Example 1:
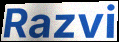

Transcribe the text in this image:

Razvi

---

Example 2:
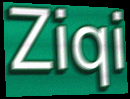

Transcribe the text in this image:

Ziqi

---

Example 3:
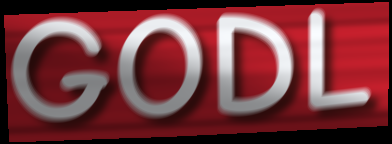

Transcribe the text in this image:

GODL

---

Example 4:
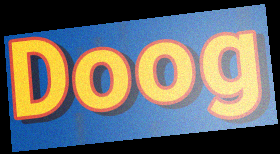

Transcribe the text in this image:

Doog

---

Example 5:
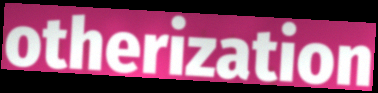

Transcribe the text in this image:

otherization